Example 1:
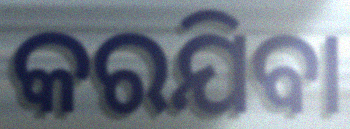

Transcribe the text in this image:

କରଯିବା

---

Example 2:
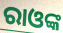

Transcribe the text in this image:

ରାଓଙ୍କ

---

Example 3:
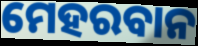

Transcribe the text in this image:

ମେହରବାନ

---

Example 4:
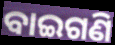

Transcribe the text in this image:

ବାଇଗଣି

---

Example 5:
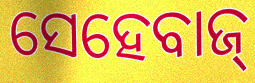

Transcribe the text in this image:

ସେହେବାଜ୍